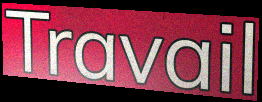
Travail